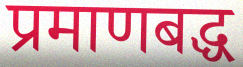
प्रमाणबद्ध